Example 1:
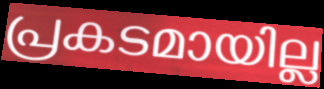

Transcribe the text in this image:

പ്രകടമായില്ല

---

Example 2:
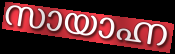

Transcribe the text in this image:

സായാഹ്ന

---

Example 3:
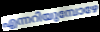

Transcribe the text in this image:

എന്നറിയുമ്പോഴേ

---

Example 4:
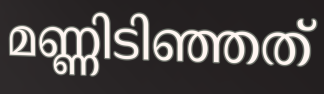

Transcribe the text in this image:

മണ്ണിടിഞ്ഞത്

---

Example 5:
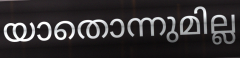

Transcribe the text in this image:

യാതൊന്നുമില്ല